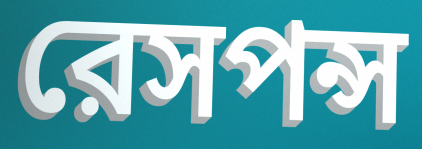
রেসপন্স